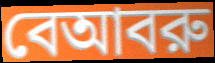
বেআবরু